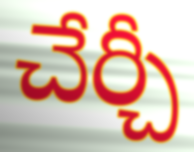
చేర్చీ